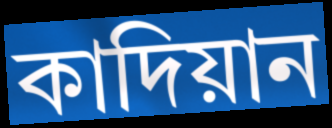
কাদিয়ান